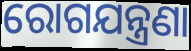
ରୋଗଯନ୍ତ୍ରଣା